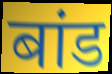
बांड